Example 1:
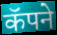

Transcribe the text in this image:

कॅपने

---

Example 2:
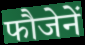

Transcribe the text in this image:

फौजेनें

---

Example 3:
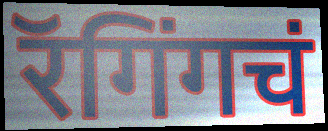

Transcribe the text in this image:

रॅगिंगचं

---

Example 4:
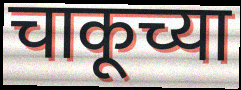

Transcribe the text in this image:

चाकूच्या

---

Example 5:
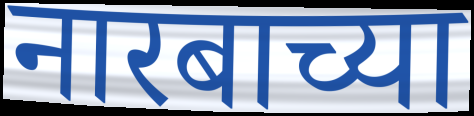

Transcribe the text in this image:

नारबाच्या